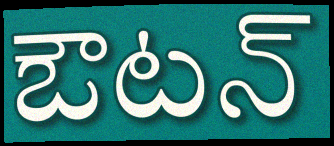
ఔటన్